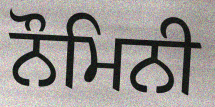
ਨੌਮਿਨੀ